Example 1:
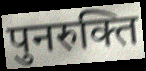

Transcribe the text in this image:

पुनरुक्ति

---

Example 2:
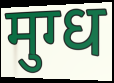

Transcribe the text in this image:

मुग्ध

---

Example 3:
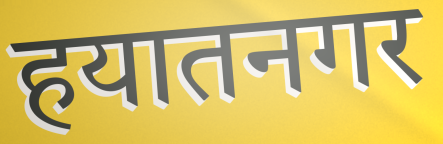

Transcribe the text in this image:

हयातनगर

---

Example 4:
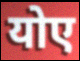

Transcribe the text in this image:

योए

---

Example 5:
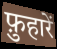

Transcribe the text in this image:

फ़ुहारें